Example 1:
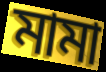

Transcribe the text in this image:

মামা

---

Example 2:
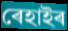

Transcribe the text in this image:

ৰেহাইৰ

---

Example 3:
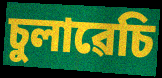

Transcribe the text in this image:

চুলাৱেচি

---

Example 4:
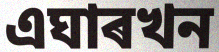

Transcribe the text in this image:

এঘাৰখন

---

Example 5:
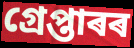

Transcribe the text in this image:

গ্ৰেপ্তাৰৰ